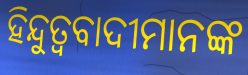
ହିନ୍ଦୁତ୍ଵବାଦୀମାନଙ୍କ